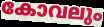
കോവലും